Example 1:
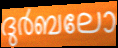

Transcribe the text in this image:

ദുർബലോ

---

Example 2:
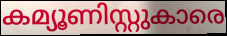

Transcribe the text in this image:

കമ്യൂണിസ്റ്റുകാരെ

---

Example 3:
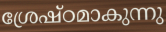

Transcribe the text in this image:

ശ്രേഷ്ഠമാകുന്നു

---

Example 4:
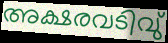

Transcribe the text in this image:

അക്ഷരവടിവു്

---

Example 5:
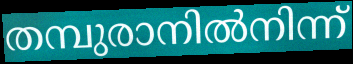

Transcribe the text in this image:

തമ്പുരാനിൽനിന്ന്